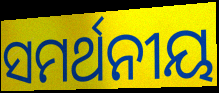
ସମର୍ଥନୀୟ